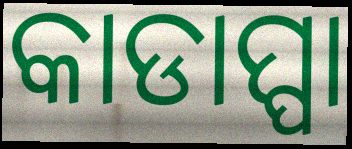
କାଡାପ୍ପା